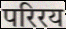
परिरय